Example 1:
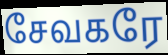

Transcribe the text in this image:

சேவகரே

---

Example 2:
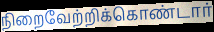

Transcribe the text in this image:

நிறைவேற்றிக்கொண்டார்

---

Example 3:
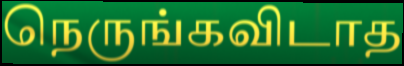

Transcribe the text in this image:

நெருங்கவிடாத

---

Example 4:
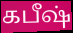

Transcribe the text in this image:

கபீஷ்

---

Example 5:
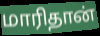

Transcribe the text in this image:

மாரிதான்